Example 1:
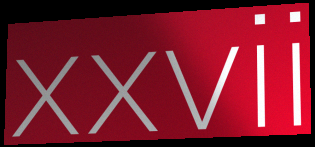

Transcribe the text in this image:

xxvii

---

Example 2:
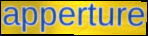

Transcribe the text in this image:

apperture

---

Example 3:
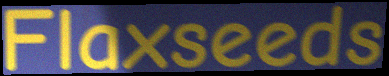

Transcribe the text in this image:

Flaxseeds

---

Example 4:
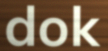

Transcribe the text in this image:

dok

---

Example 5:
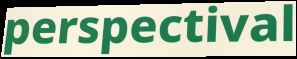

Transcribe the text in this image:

perspectival